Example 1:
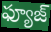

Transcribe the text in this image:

ఫ్యూజ్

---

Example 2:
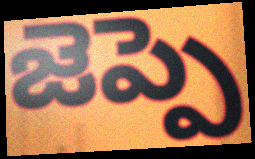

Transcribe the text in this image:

జెప్పె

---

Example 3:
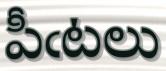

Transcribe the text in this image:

పీఁటలు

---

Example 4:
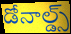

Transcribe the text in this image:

డోనాల్డ్స్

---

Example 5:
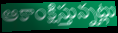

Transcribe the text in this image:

ఆకాంక్షిస్తున్నట్లు